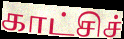
காட்சிச்